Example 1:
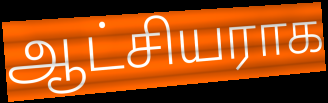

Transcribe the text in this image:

ஆட்சியராக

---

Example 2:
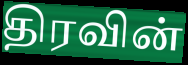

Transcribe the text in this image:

திரவின்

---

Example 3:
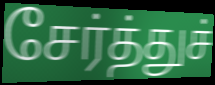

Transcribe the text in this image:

சேர்த்துச்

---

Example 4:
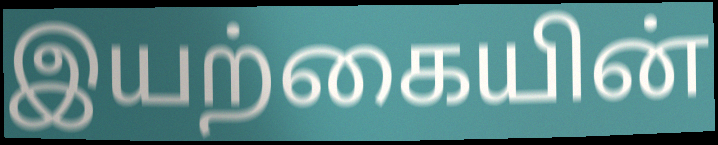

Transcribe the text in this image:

இயற்கையின்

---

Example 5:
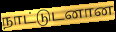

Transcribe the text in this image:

நாட்டுடனான